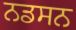
ਨਡਸਨ